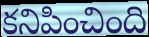
కనిపించింది